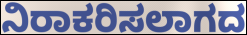
ನಿರಾಕರಿಸಲಾಗದ